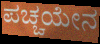
ಪಚ್ಚಯೇನ